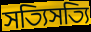
সত্যিসত্যি